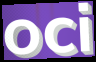
oci